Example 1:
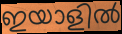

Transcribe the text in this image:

ഇയാളിൽ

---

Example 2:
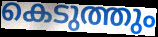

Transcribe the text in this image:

കെടുത്തും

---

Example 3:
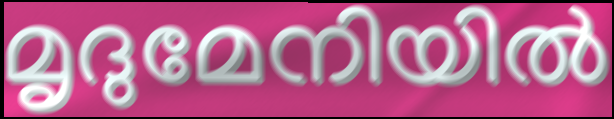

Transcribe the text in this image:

മൃദുമേനിയിൽ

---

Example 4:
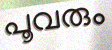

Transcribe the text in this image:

പൂവരും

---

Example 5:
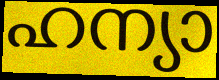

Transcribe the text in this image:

ഹന്യാ